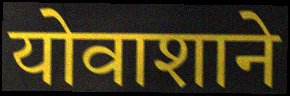
योवाशाने